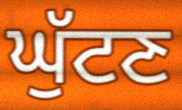
ਘੁੱਟਣ